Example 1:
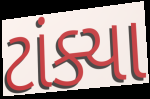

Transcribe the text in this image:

ટાંક્યા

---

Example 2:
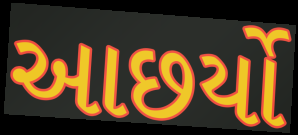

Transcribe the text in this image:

આછર્યો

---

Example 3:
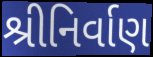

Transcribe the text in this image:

શ્રીનિર્વાણ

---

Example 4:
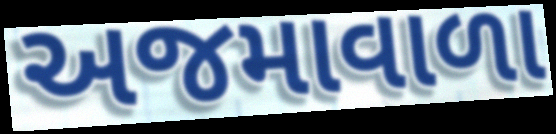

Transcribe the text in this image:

અજમાવાળા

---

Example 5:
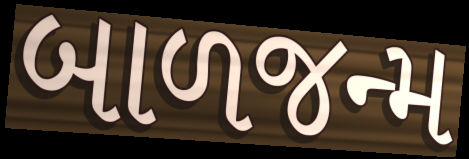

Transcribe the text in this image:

બાળજન્મ